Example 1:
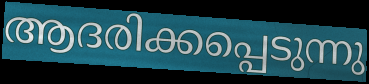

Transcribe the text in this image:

ആദരിക്കപ്പെടുന്നു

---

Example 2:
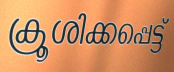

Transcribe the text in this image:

ക്രൂശിക്കപ്പെട്ട്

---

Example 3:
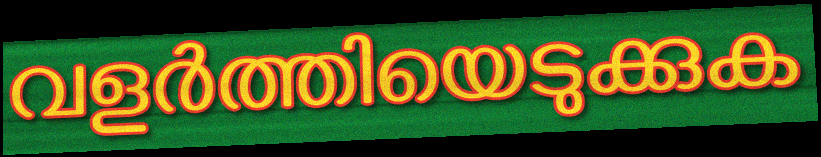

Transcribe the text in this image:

വളർത്തിയെടുക്കുക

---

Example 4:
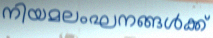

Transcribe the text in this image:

നിയമലംഘനങ്ങൾക്ക്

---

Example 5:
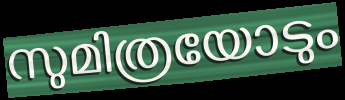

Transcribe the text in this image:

സുമിത്രയോടും